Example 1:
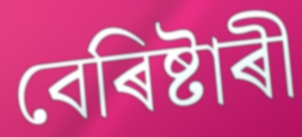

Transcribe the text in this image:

বেৰিষ্টাৰী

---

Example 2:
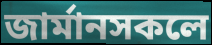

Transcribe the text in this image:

জাৰ্মানসকলে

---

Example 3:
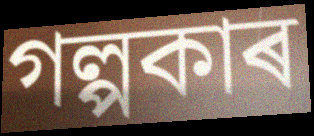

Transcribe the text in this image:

গল্পকাৰ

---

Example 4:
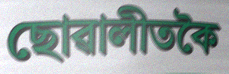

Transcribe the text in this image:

ছোৱালীতকৈ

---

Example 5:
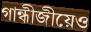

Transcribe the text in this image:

গান্ধীজীয়েও